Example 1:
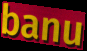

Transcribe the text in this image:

banu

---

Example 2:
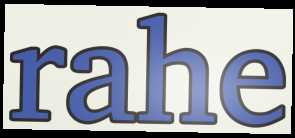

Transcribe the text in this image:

rahe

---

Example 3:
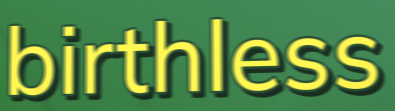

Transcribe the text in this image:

birthless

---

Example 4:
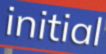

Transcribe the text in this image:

initial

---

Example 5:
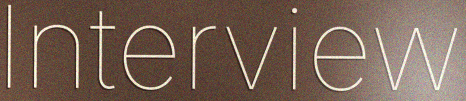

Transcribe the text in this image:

Interview